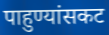
पाहुण्यांसकट